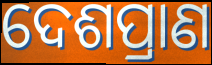
ଦେଶପ୍ରାଣ